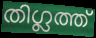
തിഗ്ലത്ത്